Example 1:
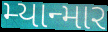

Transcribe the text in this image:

મ્યાન્માર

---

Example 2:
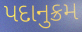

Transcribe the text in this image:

પદાનુક્રમ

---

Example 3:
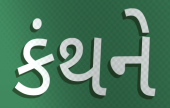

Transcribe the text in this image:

કંથને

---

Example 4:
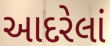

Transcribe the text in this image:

આદરેલાં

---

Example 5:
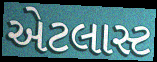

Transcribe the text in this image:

એટલાસ્ટ